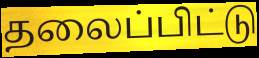
தலைப்பிட்டு